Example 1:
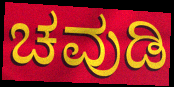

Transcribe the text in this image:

ಚವುಡಿ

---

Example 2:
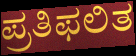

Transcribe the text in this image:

ಪ್ರತಿಫಲಿತ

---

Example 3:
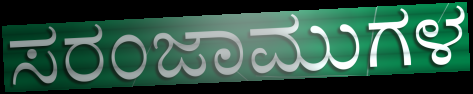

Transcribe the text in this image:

ಸರಂಜಾಮುಗಳ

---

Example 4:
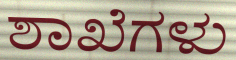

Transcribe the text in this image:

ಶಾಖೆಗಳು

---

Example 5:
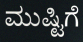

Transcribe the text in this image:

ಮುಷ್ಟಿಗೆ